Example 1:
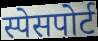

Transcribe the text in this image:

स्पेसपोर्ट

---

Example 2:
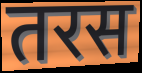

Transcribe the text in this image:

तरस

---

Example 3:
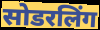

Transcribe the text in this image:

सोडरलिंग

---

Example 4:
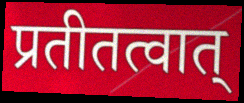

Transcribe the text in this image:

प्रतीतत्वात्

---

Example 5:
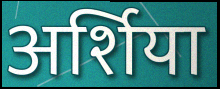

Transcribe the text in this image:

अर्शिया